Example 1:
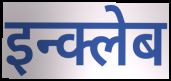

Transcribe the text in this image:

इन्क्लेब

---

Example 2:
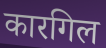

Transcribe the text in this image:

कारगिल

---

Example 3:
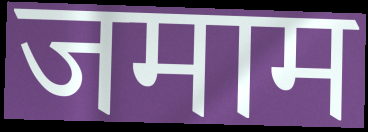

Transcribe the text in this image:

जमाम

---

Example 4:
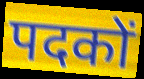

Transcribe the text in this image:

पदकों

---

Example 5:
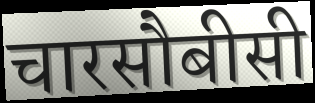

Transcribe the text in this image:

चारसौबीसी